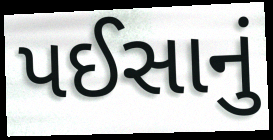
પઈસાનું